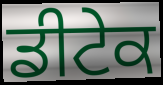
ਡੀਟੇਕ